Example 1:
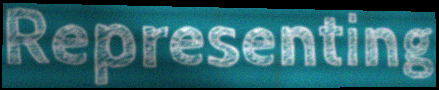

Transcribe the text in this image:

Representing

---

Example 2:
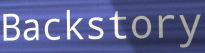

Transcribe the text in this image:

Backstory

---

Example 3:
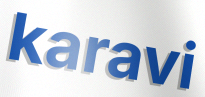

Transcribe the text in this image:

karavi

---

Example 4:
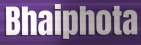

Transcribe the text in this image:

Bhaiphota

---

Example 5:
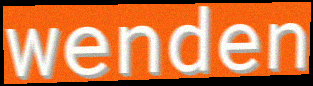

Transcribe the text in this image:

wenden